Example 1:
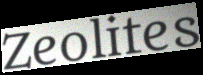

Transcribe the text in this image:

Zeolites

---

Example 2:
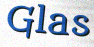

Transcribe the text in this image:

Glas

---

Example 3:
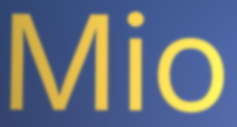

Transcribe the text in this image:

Mio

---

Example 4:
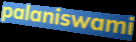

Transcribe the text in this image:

palaniswami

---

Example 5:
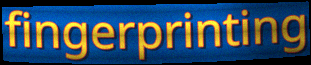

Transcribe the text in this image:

fingerprinting